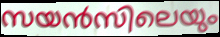
സയൻസിലെയും